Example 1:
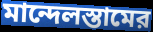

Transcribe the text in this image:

মান্দেলস্তামের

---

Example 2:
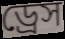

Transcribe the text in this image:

ড্রেস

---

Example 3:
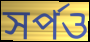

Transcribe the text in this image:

সর্পও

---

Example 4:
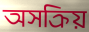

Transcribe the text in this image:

অসক্রিয়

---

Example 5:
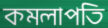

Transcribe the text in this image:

কমলাপতি